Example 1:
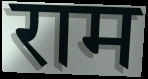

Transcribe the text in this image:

राम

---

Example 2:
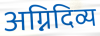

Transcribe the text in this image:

अग्निदिव्य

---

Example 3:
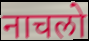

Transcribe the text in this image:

नाचलो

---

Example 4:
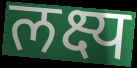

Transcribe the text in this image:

लक्ष्य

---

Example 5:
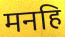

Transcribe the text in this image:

मनहि